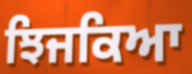
ਝਿਜਕਿਆ